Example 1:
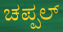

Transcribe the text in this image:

ಚಪ್ಪಲ್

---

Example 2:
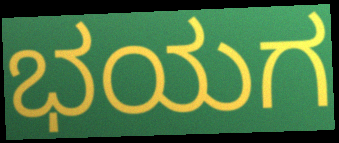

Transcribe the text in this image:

ಭಯಗ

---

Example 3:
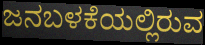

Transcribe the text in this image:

ಜನಬಳಕೆಯಲ್ಲಿರುವ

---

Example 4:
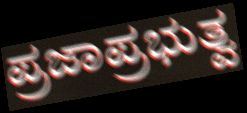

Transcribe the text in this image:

ಪ್ರಜಾಪ್ರಭುತ್ವ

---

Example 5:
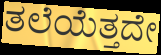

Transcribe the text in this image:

ತಲೆಯೆತ್ತದೇ